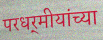
परधर्मीयांच्या